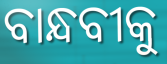
ବାନ୍ଧବୀକୁ